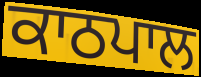
ਕਾਠਪਾਲ